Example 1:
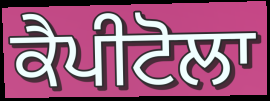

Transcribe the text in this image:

ਕੈਪੀਟੋਲਾ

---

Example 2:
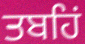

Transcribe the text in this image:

ਤਬਹਿਂ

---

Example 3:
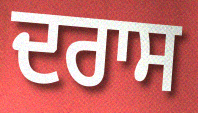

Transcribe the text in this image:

ਦਰਾਸ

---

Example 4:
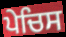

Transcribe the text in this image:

ਪੇਚਿਸ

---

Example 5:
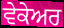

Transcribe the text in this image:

ਵੇਕੇਅਰ